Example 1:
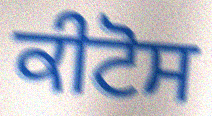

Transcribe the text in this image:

ਕੀਟੋਸ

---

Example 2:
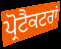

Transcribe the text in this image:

ਪ੍ਰੋਟੈਕਟਰਾਂ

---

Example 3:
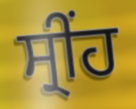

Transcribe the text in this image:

ਸ੍ਰੀਂਹ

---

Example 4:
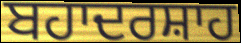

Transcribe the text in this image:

ਬਹਾਦਰਸ਼ਾਹ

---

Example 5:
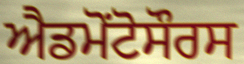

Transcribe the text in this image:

ਐਡਮੋਂਟੋਸੌਰਸ